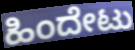
ಹಿಂದೇಟು